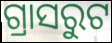
ଗ୍ରାସରୁଟ